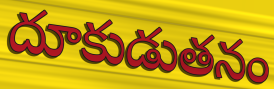
దూకుడుతనం